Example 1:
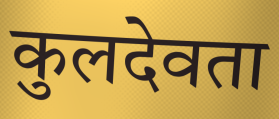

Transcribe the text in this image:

कुलदेवता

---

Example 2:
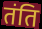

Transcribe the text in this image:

तंति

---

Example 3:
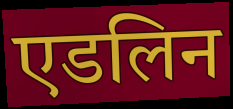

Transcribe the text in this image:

एडलिन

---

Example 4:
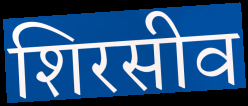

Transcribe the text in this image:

शिरसीव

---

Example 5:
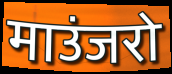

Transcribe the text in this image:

माउंजरो